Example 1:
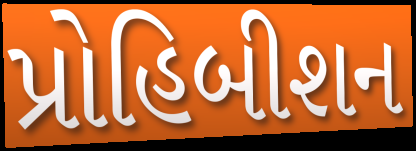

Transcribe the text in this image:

પ્રોહિબીશન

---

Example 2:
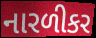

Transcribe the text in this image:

નારળીકર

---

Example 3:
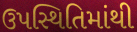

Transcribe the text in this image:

ઉપસ્થિતિમાંથી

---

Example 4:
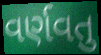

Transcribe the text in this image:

વર્ણવતુ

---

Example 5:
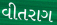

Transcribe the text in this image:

વીતરાગ